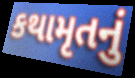
કથામૃતનું